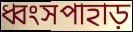
ধ্বংসপাহাড়